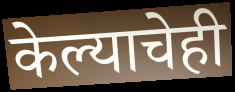
केल्याचेही